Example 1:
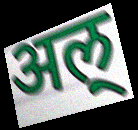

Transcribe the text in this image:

अल्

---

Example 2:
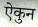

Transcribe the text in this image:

ऐकुन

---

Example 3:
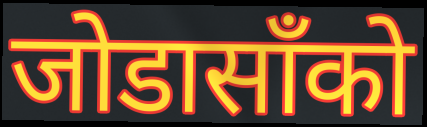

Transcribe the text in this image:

जोडासाँको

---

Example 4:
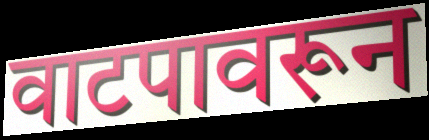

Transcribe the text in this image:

वाटपावरून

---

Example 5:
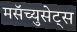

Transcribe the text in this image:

मसॅच्युसेट्स